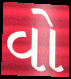
વો